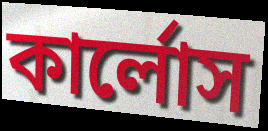
কার্লোস